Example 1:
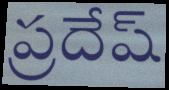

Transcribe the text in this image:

ప్రదేష్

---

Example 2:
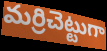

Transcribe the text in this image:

మర్రిచెట్టుగా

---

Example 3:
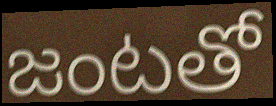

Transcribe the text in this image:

జంటతో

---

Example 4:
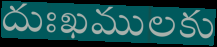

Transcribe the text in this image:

దుఃఖములకు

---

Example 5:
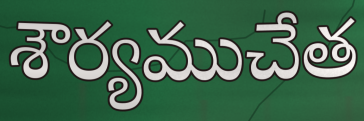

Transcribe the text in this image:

శౌర్యముచేత